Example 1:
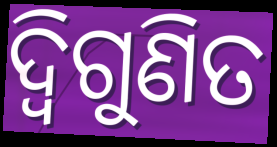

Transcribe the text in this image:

ଦ୍ୱିଗୁଣିତ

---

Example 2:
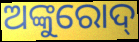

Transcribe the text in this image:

ଅଙ୍କୁରୋଦ୍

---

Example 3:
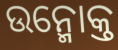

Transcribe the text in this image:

ଉନ୍ମୋକ୍ତ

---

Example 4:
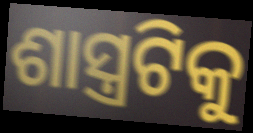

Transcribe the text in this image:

ଶାସ୍ତ୍ରଟିକୁ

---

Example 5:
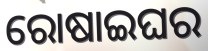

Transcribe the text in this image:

ରୋଷାଇଘର